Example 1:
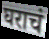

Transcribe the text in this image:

घराचं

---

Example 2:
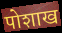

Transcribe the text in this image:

पोशाख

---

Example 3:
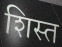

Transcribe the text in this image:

शिस्त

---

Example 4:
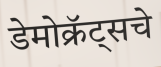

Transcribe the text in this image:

डेमोक्रॅट्सचे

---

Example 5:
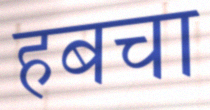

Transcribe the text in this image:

हबचा